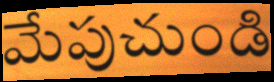
మేపుచుండి